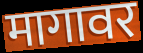
मागावर